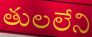
తులలేని